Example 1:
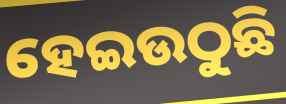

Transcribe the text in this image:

ହେଇଉଠୁଛି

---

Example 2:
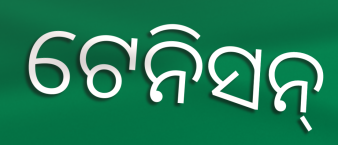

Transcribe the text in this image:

ଟେନିସନ୍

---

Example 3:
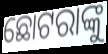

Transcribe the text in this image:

ଛୋଟରାଙ୍କୁ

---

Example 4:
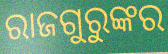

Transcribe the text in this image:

ରାଜଗୁରୁଙ୍କର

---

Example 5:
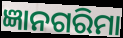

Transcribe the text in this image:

ଜ୍ଞାନଗରିମା